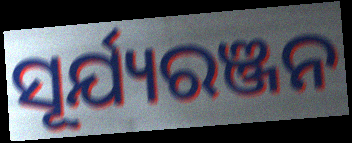
ସୂର୍ଯ୍ୟରଞ୍ଜନ